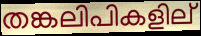
തങ്കലിപികളില്